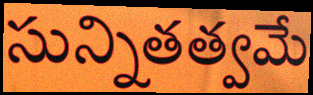
సున్నితత్వమే